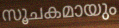
സൂചകമായും